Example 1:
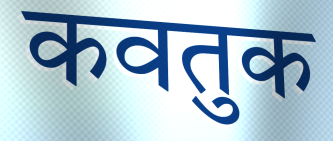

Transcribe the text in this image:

कवतुक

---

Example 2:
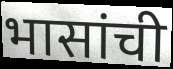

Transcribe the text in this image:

भासांची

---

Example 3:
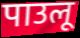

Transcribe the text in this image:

पाउलू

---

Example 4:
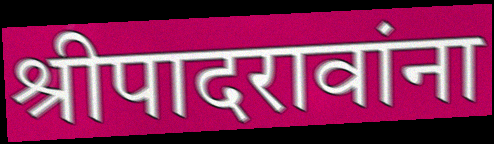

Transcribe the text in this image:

श्रीपादरावांना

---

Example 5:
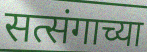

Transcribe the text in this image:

सत्संगाच्या